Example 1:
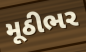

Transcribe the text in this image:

મૂઠીભર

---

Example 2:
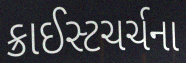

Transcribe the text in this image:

ક્રાઈસ્ટચર્ચના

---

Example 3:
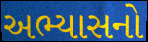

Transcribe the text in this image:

અભ્યાસનો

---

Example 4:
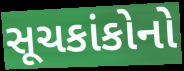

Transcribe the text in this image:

સૂચકાંકોનો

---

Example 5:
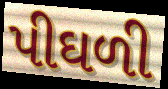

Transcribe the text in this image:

પીઘળી